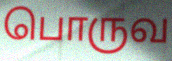
பொருவ